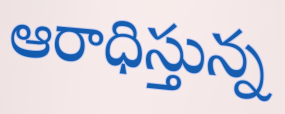
ఆరాధిస్తున్న